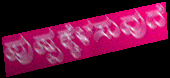
ಪುಷ್ಪಕ್ಕೆಳಸುವುದೆ